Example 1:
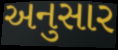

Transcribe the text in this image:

અનુસાર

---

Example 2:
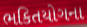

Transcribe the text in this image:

ભકિતયોગના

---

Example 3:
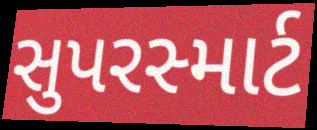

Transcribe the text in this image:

સુપરસ્માર્ટ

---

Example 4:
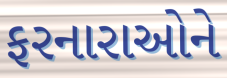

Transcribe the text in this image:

ફરનારાઓને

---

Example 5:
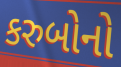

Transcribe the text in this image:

કરુબોનો